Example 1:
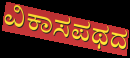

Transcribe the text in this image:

ವಿಕಾಸಪಥದ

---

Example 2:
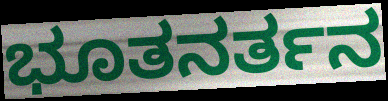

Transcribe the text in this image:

ಭೂತನರ್ತನ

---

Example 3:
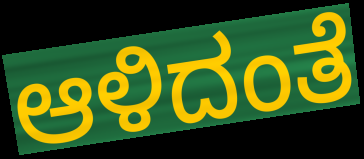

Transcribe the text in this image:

ಆಳಿದಂತೆ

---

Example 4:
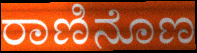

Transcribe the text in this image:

ರಾಣಿನೊಣ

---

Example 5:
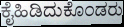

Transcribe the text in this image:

ಕೈಹಿಡಿದುಕೊಂಡರು